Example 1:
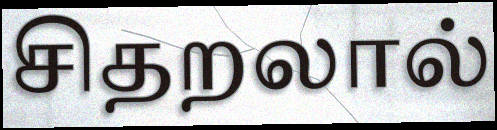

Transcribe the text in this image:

சிதறலால்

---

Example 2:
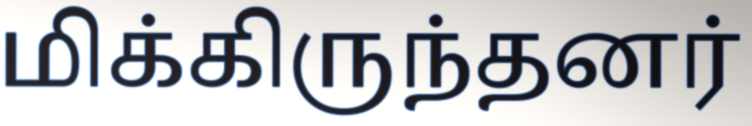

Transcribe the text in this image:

மிக்கிருந்தனர்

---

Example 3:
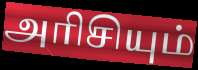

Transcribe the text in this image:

அரிசியும்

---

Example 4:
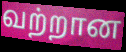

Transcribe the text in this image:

வற்றான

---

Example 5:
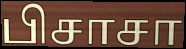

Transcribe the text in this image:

பிசாசா